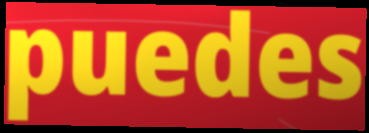
puedes